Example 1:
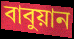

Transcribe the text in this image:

বাবুয়ান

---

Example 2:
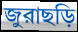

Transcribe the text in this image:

জুরাছড়ি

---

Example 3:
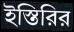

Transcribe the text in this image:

ইস্তিরির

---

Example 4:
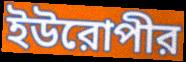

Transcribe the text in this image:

ইউরোপীর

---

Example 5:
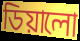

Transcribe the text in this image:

ডিয়ালো